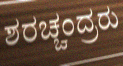
ಶರಚ್ಚಂದ್ರರು